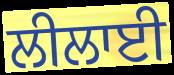
ਲੀਲਾਈ